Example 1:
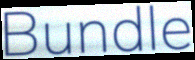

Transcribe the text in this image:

Bundle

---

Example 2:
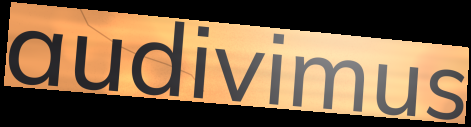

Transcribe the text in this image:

audivimus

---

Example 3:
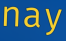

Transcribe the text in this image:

nay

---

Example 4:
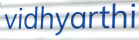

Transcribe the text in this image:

vidhyarthi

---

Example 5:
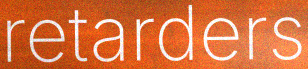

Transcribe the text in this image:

retarders